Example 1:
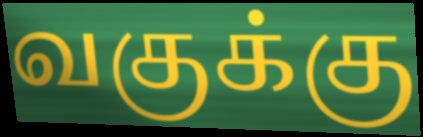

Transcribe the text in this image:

வகுக்கு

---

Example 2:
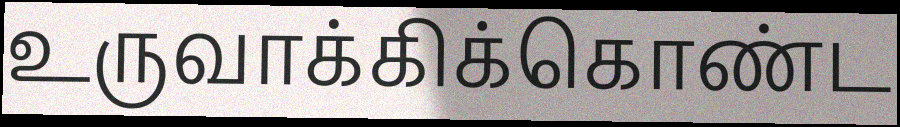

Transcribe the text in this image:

உருவாக்கிக்கொண்ட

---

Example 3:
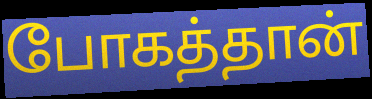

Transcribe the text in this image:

போகத்தான்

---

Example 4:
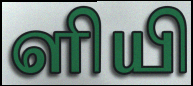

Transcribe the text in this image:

ளியி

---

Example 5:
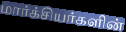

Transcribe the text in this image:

மார்க்சியர்களின்